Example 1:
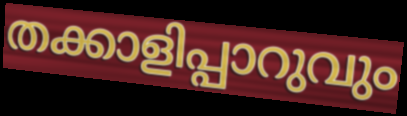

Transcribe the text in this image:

തക്കാളിപ്പാറുവും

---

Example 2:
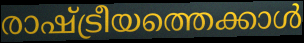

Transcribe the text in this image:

രാഷ്ട്രീയത്തെക്കാൾ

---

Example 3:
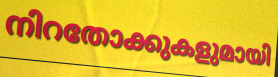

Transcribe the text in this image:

നിറതോക്കുകളുമായി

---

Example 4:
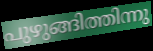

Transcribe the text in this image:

പുഴുങ്ങിത്തിന്നു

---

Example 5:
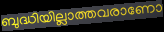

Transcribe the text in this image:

ബുദ്ധിയില്ലാത്തവരാണോ